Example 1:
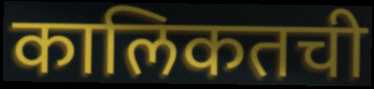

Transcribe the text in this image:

कालिकतची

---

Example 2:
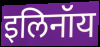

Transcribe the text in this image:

इलिनॉय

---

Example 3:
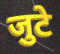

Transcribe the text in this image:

जुटे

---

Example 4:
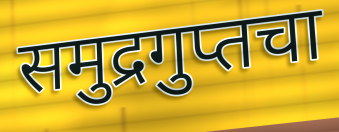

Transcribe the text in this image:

समुद्रगुप्तचा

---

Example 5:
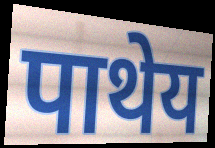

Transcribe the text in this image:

पाथेय